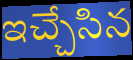
ఇచ్చేసిన